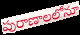
పురాణాలలోనూ